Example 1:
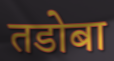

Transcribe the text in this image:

तडोबा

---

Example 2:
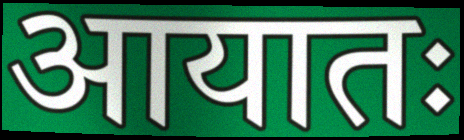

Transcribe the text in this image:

आयातः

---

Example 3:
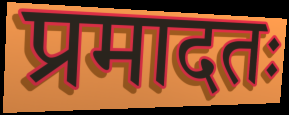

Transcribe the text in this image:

प्रमादतः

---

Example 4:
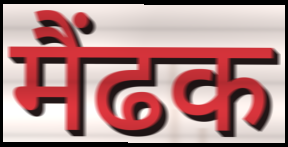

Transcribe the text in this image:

मैंढक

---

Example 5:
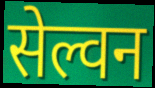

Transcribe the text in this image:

सेल्वन